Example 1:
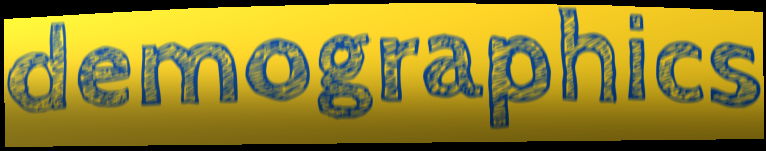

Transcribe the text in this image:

demographics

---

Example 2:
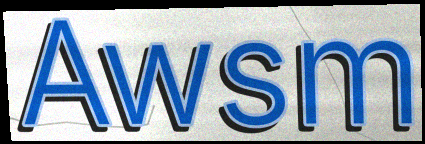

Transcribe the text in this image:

Awsm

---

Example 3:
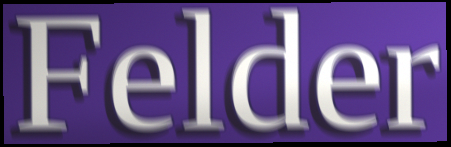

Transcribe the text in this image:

Felder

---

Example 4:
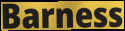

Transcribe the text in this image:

Barness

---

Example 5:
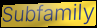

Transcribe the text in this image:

Subfamily